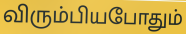
விரும்பியபோதும்